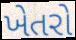
ખેતરો